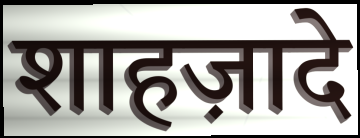
शाहज़ादे